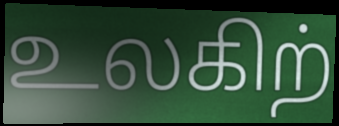
உலகிற்